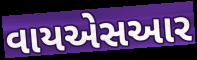
વાયએસઆર